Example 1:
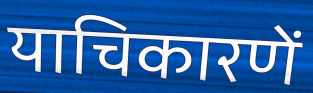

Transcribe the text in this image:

याचिकारणें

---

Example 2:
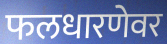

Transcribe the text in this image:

फलधारणेवर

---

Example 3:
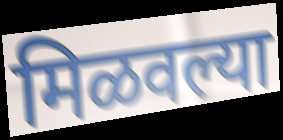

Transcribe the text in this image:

मिळवल्या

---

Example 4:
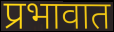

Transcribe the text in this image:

प्रभावात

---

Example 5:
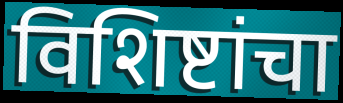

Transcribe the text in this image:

विशिष्टांचा